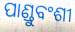
ପାଣ୍ଡୁବଂଶୀ